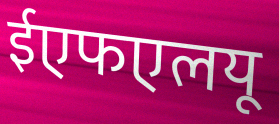
ईएफएलयू